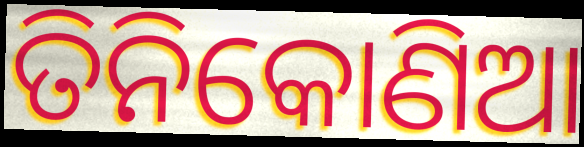
ତିନିକୋଣିଆ